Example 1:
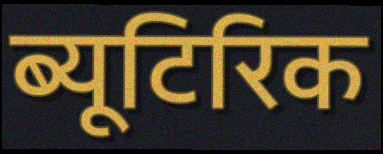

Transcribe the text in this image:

ब्यूटिरिक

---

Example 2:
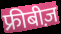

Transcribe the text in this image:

फ्रीबीज़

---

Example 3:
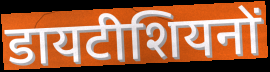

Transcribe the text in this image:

डायटीशियनों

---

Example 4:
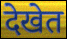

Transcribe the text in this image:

देखेत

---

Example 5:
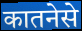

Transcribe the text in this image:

कातनेसे